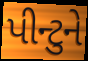
પીન્ટુને